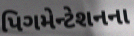
પિગમેન્ટેશનના